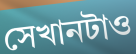
সেখানটাও